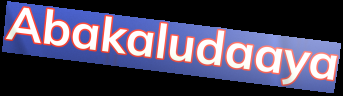
Abakaludaaya